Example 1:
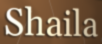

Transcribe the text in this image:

Shaila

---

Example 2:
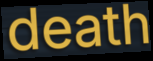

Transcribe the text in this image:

death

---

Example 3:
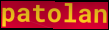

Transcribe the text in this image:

patolan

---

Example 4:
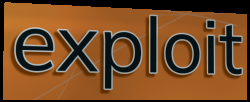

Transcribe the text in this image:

exploit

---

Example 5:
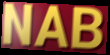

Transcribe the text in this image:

NAB